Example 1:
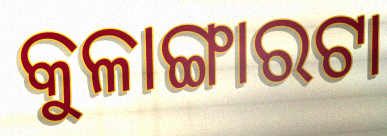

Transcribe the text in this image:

କୁଳାଙ୍ଗାରଟା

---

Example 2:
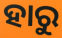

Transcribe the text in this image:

ହାରୁ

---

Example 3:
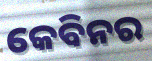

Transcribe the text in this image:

କେବିନର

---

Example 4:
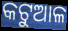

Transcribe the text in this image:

କଟୁଆଳ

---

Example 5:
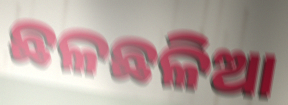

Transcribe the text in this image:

ଛଳଛଳିଆ